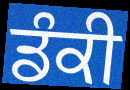
ਡੰਕੀ